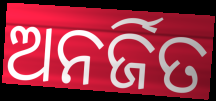
ଅନର୍ଜିତ